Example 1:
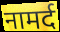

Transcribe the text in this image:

नामर्द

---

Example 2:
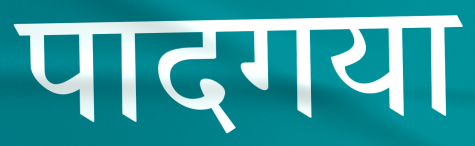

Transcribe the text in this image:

पादगया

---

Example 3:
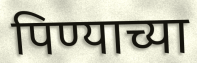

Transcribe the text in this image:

पिण्याच्या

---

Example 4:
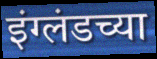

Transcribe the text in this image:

इंग्‍लंडच्या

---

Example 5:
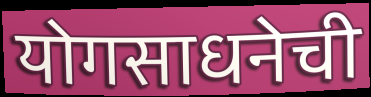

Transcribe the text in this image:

योगसाधनेची